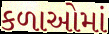
કળાઓમાં